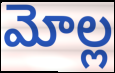
మోల్ల